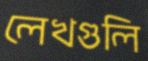
লেখগুলি